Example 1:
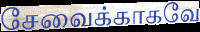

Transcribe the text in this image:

சேவைக்காகவே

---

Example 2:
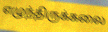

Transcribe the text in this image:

எழுந்திருக்கலை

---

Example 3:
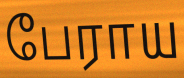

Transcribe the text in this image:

பேராய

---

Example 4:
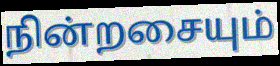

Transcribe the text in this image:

நின்றசையும்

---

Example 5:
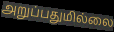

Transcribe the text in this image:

அறுப்பதுமில்லை